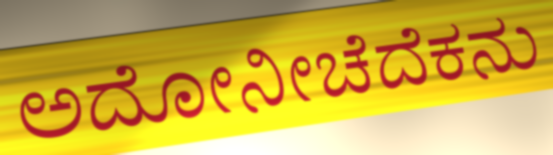
ಅದೋನೀಚೆದೆಕನು